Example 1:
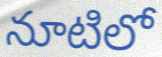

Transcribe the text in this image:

నూటిలో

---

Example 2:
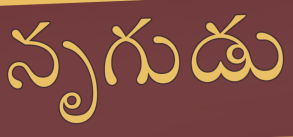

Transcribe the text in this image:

నృగుడు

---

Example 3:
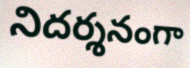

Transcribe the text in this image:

నిదర్శనంగా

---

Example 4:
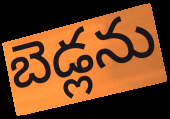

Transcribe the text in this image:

బెడ్లను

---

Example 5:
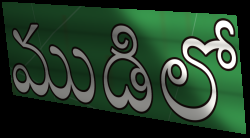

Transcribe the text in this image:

ముడిలో